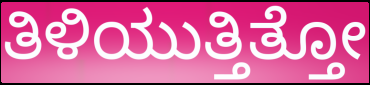
ತಿಳಿಯುತ್ತಿತ್ತೋ